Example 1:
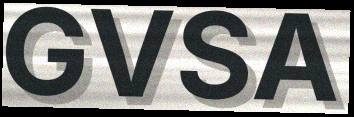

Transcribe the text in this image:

GVSA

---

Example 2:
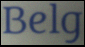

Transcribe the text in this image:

Belg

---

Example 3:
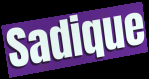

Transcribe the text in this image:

Sadique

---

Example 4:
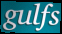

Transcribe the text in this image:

gulfs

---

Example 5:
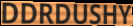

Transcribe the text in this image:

DDRDUSHY